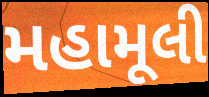
મહામૂલી